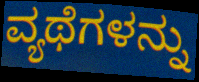
ವ್ಯಥೆಗಳನ್ನು